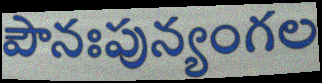
పౌనఃపున్యంగల